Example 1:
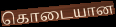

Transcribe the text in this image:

கொடையான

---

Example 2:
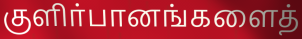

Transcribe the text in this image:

குளிர்பானங்களைத்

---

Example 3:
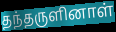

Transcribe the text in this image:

தந்தருளினாள்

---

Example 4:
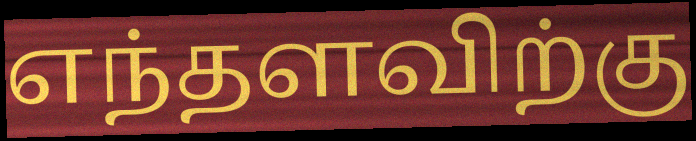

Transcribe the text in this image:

எந்தளவிற்கு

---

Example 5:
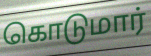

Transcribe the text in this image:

கொடுமார்